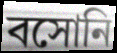
বসোনি